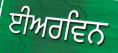
ਈਅਰਵਿਨ